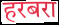
हरबरा